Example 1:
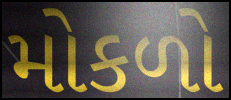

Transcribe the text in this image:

મોકળો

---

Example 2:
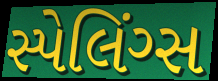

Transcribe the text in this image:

સ્પેલિંગ્સ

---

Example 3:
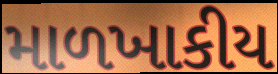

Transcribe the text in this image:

માળખાકીય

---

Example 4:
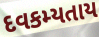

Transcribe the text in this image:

દવકમ્યતાય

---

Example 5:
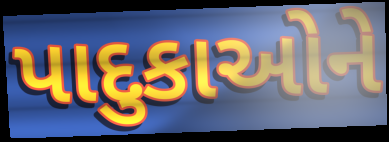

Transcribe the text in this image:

પાદુકાઓને